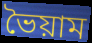
ভৈয়াম